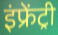
इंफ्रेंट्री